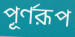
পূর্ণরূপ